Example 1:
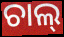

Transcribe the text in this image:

ଚାଲ୍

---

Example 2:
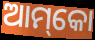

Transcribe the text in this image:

ଆମ୍‌କୋ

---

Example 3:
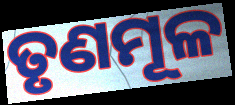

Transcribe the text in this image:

ତୃଣମୂଳ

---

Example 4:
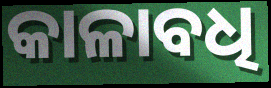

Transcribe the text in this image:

କାଳାବଧି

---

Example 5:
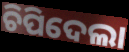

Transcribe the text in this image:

ଚିପିଦେଲା